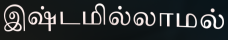
இஷ்டமில்லாமல்